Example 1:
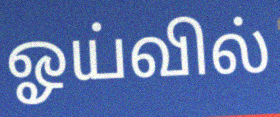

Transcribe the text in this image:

ஓய்வில்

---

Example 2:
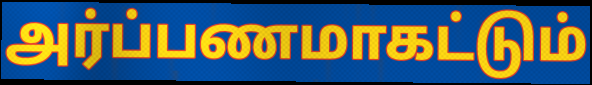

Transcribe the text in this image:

அர்ப்பணமாகட்டும்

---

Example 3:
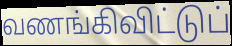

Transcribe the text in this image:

வணங்கிவிட்டுப்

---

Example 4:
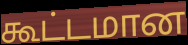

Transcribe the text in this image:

கூட்டமான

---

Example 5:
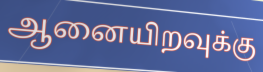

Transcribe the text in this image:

ஆனையிறவுக்கு